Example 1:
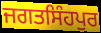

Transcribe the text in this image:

ਜਗਤਸਿੰਹਪੁਰ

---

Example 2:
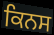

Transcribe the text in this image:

ਕਿਨਸ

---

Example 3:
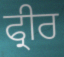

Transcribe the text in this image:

ਫ੍ਰੀਰ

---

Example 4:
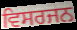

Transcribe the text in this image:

ਵਿਸਰਜਨ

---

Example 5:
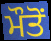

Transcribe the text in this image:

ਮੌਤੋਂ